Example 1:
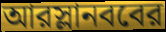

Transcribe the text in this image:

আরস্লানববের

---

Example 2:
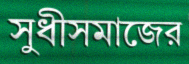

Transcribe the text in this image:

সুধীসমাজের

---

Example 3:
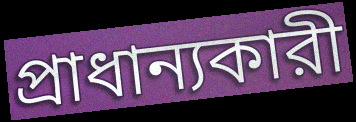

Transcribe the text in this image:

প্রাধান্যকারী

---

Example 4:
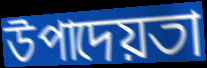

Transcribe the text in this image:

উপাদেয়তা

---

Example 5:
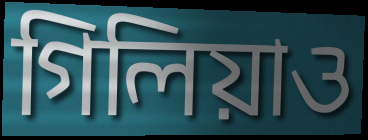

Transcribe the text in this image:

গিলিয়াও